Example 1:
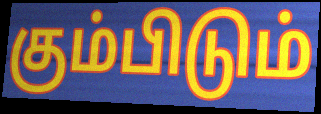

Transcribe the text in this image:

கும்பிடும்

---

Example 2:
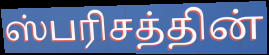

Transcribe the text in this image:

ஸ்பரிசத்தின்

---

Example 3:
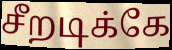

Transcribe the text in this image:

சீறடிக்கே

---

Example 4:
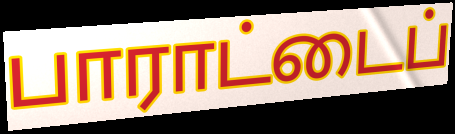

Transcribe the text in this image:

பாராட்டைப்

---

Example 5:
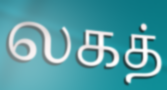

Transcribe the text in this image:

லகத்